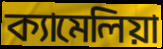
ক্যামেলিয়া